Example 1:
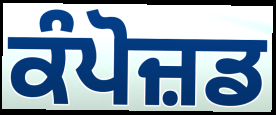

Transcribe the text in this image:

ਕੰਪੋਜ਼ਡ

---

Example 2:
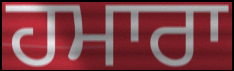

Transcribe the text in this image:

ਹਮਾਰਾ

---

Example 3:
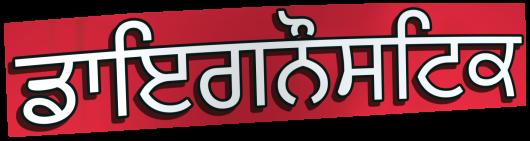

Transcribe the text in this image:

ਡਾਇਗਨੌਸਟਿਕ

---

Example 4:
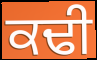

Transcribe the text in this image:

ਕਢੀ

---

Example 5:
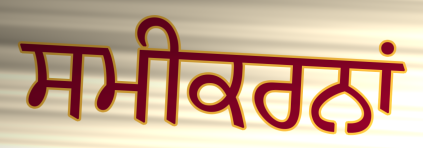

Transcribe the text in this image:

ਸਮੀਕਰਨਾਂ